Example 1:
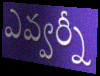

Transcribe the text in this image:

ఎవ్వర్నీ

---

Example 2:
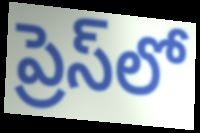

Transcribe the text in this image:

ప్రెస్‌లో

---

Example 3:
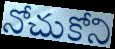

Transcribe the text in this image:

నోచుకోని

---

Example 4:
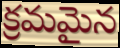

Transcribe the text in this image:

క్రమమైన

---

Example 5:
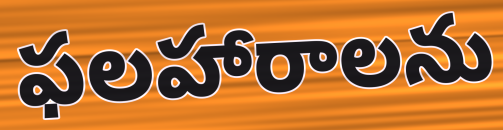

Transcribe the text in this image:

ఫలహారాలను